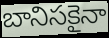
బానిసకైనా